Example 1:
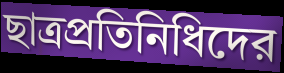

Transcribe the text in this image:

ছাত্রপ্রতিনিধিদের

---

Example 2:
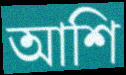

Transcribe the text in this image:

আশি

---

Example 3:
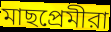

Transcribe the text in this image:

মাছপ্রেমীরা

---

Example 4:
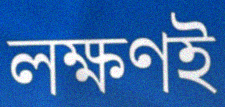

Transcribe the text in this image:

লক্ষণই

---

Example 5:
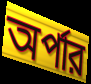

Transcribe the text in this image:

অর্পার